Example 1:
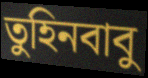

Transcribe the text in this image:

তুহিনবাবু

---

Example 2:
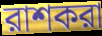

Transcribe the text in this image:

রাশকরা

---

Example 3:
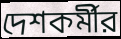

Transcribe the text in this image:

দেশকর্মীর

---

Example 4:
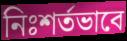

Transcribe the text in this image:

নিঃশর্তভাবে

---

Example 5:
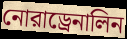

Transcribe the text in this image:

নোরাড্রেনালিন